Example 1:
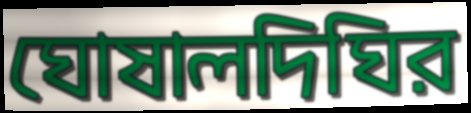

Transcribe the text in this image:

ঘোষালদিঘির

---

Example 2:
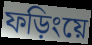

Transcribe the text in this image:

ফড়িংয়ে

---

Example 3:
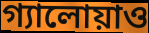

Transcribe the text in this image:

গ্যালোয়াও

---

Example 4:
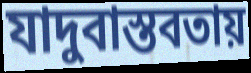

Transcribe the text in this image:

যাদুবাস্তবতায়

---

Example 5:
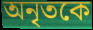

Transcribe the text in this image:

অনৃতকে